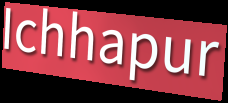
Ichhapur